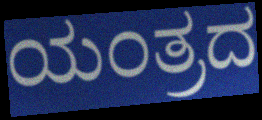
ಯಂತ್ರದ